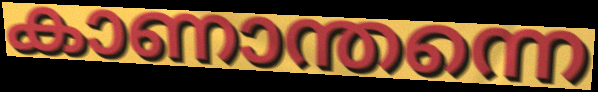
കാണാന്തന്നെ